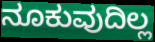
ನೂಕುವುದಿಲ್ಲ